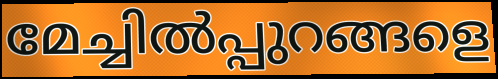
മേച്ചിൽപ്പുറങ്ങളെ